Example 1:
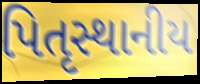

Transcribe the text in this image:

પિતૃસ્થાનીય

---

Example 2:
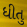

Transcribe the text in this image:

ધીતુ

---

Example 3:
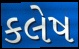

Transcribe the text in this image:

કલેષ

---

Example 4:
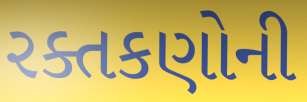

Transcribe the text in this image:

રક્તકણોની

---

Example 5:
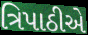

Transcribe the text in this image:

ત્રિપાઠીએ